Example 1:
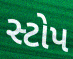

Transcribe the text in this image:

સ્ટોપ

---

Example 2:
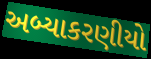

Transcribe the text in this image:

અબ્યાકરણીયો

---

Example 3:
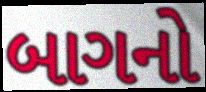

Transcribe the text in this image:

બાગનો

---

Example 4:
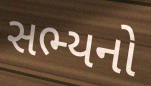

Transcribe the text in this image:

સભ્યનો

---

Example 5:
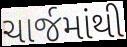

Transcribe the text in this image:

ચાર્જમાંથી